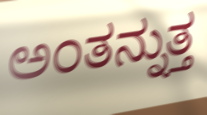
ಅಂತನ್ನುತ್ತ